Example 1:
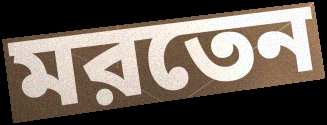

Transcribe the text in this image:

মরতেন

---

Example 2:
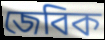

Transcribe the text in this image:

জেবিক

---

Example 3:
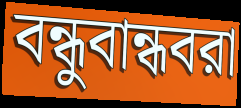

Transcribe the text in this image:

বন্ধুবান্ধবরা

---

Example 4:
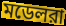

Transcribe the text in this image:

মডেলরা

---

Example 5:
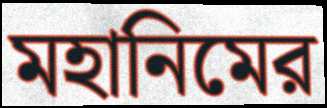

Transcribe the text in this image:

মহানিমের